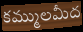
కమ్ములమీద